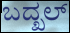
ಬದ್ಖಲ್